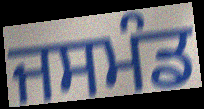
ਜਸਮੰਡ